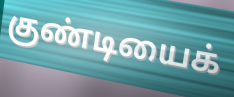
குண்டியைக்